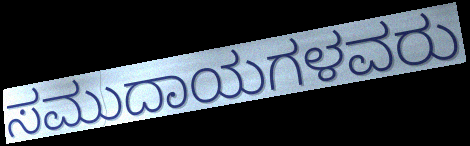
ಸಮುದಾಯಗಳವರು